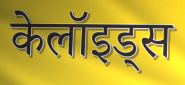
केलॉइड्स